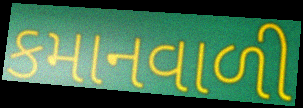
કમાનવાળી